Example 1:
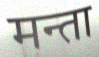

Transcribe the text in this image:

मन्ता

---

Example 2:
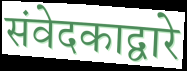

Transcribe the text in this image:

संवेदकाद्वारे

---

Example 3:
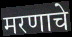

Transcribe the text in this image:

मरणाचे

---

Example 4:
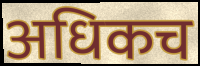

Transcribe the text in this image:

अधिकच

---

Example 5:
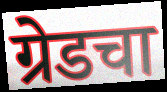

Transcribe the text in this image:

ग्रेडचा